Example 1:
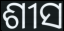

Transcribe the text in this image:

ଶୀସ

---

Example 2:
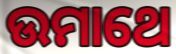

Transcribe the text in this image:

ଉମାଥେ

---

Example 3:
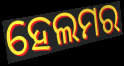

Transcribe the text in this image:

ହେଲମର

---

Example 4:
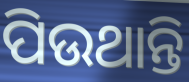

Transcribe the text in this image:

ପିଉଥାନ୍ତି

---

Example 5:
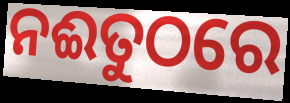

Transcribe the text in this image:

ନଈତୁଠରେ